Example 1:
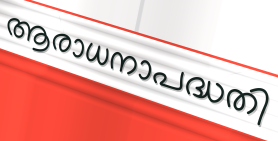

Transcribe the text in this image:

ആരാധനാപദ്ധതി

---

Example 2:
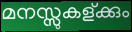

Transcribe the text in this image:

മനസ്സുകള്ക്കും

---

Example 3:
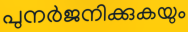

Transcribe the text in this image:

പുനർജനിക്കുകയും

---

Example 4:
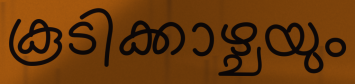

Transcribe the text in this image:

കൂടിക്കാഴ്ചയും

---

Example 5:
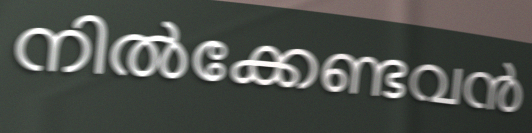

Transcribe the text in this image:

നിൽക്കേണ്ടവൻ